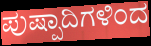
ಪುಷ್ಪಾದಿಗಳಿಂದ